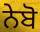
ਨੇਬੋ